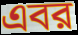
এবর